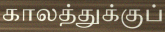
காலத்துக்குப்